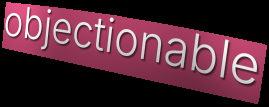
objectionable